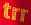
trr